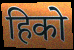
हिको